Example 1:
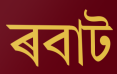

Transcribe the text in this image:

ৰবাট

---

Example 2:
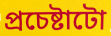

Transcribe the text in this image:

প্ৰচেষ্টাটো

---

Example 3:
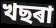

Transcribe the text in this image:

খছৰা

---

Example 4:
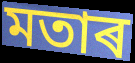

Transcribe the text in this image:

মতাৰ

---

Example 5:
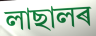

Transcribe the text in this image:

লাছালৰ